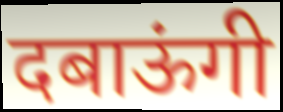
दबाऊंगी